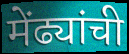
मेंढ्यांची